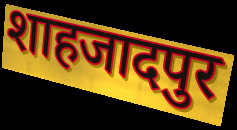
शाहजादपुर